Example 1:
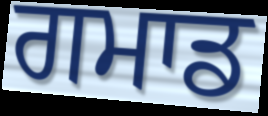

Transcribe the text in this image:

ਗਮਾਡ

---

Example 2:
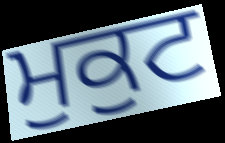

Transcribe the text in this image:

ਮੁਕੁਟ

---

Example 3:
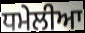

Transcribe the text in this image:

ਧਮੇਲੀਆ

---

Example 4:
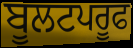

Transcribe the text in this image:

ਬੂਲਟਪਰੂਫ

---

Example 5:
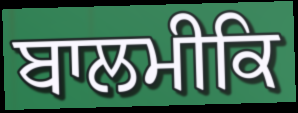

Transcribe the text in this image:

ਬਾਲਮੀਕਿ